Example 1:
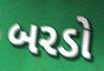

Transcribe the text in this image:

બરડો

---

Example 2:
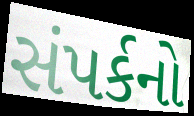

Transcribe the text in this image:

સંપર્કનો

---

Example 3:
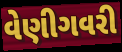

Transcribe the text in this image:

વેણીગવરી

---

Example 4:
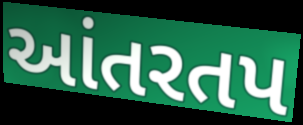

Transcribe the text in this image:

આંતરતપ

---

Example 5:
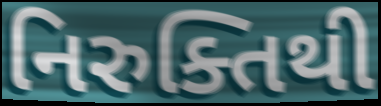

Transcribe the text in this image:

નિરુક્તિથી